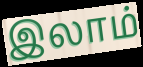
இலாம்